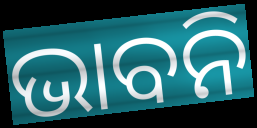
ଭାବନି